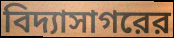
বিদ্যাসাগরের